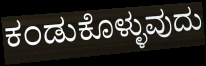
ಕಂಡುಕೊಳ್ಳುವುದು